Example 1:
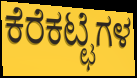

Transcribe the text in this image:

ಕೆರೆಕಟ್ಟೆಗಳ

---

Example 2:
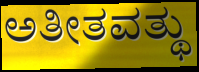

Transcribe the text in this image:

ಅತೀತವತ್ಥು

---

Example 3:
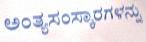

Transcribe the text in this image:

ಅಂತ್ಯಸಂಸ್ಕಾರಗಳನ್ನು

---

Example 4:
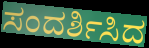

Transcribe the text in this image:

ಸಂದರ್ಶಿಸಿದ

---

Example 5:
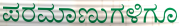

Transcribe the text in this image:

ಪರಮಾಣುಗಳಿಗೂ